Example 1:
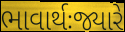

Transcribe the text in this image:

ભાવાર્થઃજ્યારે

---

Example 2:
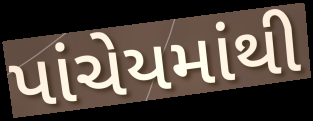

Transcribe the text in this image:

પાંચેયમાંથી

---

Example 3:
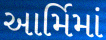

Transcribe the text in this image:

આર્મિમાં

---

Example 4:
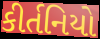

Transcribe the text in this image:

કીર્તનિયો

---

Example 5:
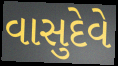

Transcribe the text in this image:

વાસુદેવે